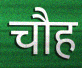
चौह